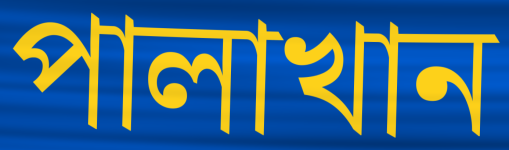
পালাখান